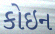
કોઇન